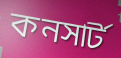
কনসার্ট